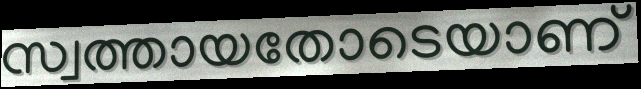
സ്വത്തായതോടെയാണ്